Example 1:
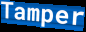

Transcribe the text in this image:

Tamper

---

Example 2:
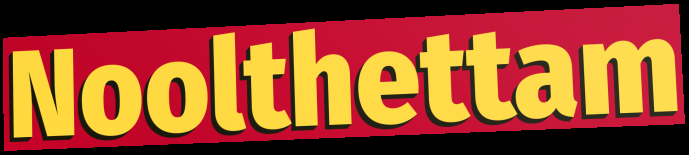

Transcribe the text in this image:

Noolthettam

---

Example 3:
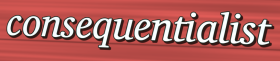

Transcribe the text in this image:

consequentialist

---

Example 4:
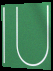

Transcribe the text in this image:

IU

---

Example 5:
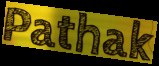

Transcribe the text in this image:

Pathak